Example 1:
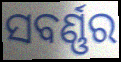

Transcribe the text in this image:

ସବର୍ଣ୍ଣର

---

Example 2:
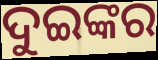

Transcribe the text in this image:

ଦୁଇଙ୍କର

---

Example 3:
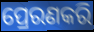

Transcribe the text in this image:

ପ୍ରେରଣକରି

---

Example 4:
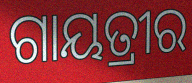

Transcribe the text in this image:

ଗାୟତ୍ରୀର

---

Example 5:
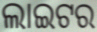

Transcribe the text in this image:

ଲାଇଟର